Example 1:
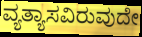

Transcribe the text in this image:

ವ್ಯತ್ಯಾಸವಿರುವುದೇ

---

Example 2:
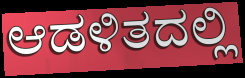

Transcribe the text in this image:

ಆಡಳಿತದಲ್ಲಿ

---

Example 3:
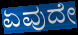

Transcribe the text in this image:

ಏವುದೇ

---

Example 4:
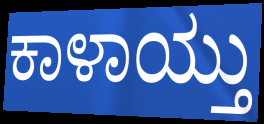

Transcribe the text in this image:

ಕಾಳಾಯ್ತು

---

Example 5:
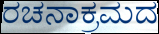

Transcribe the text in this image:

ರಚನಾಕ್ರಮದ